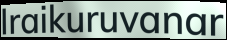
Iraikuruvanar